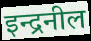
इन्द्रनील